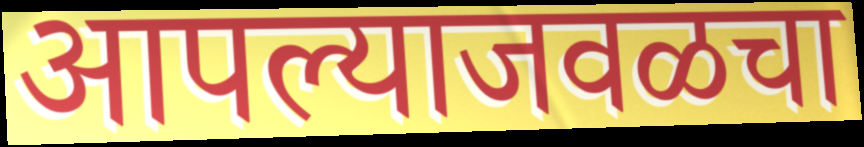
आपल्याजवळचा